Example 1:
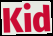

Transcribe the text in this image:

Kid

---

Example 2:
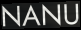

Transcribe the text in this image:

NANU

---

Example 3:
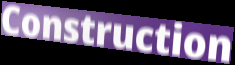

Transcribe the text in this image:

Construction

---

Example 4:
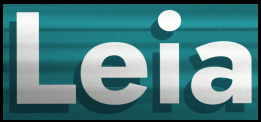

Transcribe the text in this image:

Leia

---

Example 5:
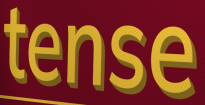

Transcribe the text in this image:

tense